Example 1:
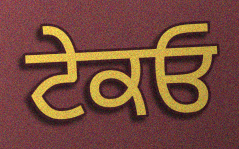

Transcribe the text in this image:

ਟੇਕਓ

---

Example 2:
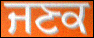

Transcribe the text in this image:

ਜਣਕ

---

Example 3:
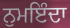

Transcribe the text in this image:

ਨੁਮਇੰਦਾ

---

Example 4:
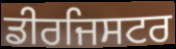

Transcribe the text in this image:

ਡੀਰਜਿਸਟਰ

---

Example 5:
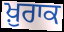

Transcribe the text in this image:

ਖ਼ੁਰਾਕ